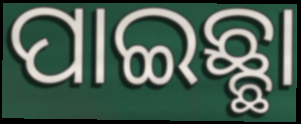
ପାଇଛ୍ଛା